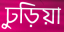
ঢুড়িয়া